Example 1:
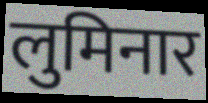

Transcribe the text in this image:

लुमिनार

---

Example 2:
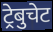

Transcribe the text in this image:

ट्रेबुचेट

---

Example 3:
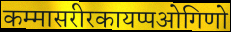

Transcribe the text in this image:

कम्मासरीरकायप्पओगिणो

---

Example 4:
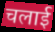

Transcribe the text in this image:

चलाई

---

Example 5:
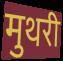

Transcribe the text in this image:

मुथरी